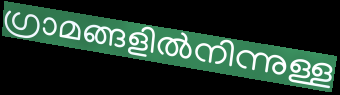
ഗ്രാമങ്ങളിൽനിന്നുള്ള